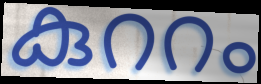
കുററം